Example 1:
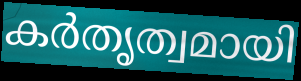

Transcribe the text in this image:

കർതൃത്വമായി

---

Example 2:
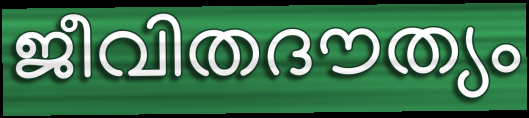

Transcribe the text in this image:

ജീവിതദൗത്യം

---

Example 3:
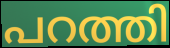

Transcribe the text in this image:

പറത്തി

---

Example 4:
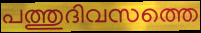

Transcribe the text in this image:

പത്തുദിവസത്തെ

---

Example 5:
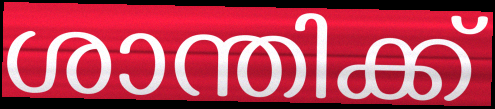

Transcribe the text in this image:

ശാന്തിക്ക്